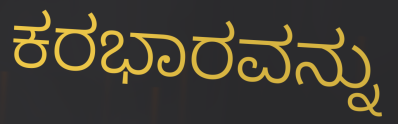
ಕರಭಾರವನ್ನು